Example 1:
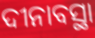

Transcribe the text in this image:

ଦୀନାବସ୍ଥା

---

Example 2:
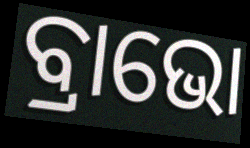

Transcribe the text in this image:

ବ୍ରାଭୋ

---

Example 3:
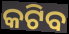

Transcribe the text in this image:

କଟିବ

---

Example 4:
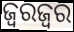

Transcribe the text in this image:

ଜ୍ୱରଜ୍ୱର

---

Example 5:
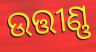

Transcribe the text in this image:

ଉତ୍ତୀଣ୍ଣ